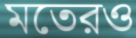
মতেরও